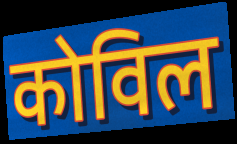
कोविल